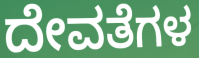
ದೇವತೆಗಳ